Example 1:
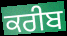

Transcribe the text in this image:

ਕਰੀਬ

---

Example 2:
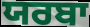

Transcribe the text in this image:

ਯਰਬਾ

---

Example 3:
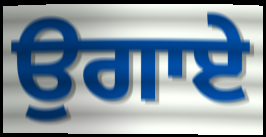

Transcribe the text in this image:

ਉਗਾਏ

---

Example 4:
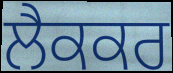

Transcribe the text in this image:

ਲੈਕਕਰ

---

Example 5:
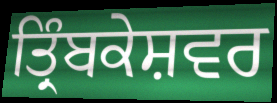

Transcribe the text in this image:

ਤ੍ਰਿੰਬਕੇਸ਼ਵਰ